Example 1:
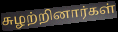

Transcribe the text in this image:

சுழற்றினார்கள்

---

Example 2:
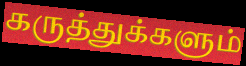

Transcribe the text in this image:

கருத்துக்களும்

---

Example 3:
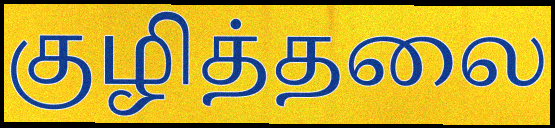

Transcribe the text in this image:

குழித்தலை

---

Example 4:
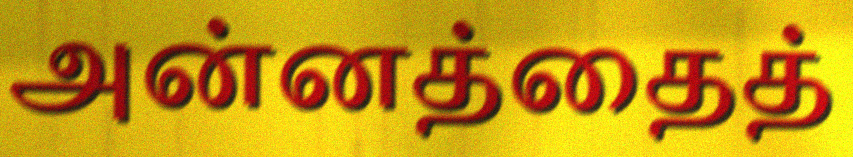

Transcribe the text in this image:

அன்னத்தைத்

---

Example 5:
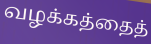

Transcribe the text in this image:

வழக்கத்தைத்